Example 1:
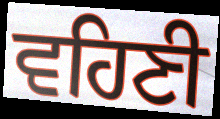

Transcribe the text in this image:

ਵਹਿਣੀ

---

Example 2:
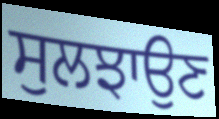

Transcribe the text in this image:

ਸੁਲਝਾਉਣ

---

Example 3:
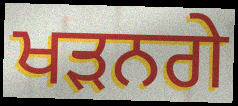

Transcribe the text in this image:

ਖੜਨਗੇ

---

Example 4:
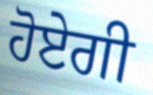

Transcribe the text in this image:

ਹੋਏਗੀ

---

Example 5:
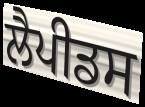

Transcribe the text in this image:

ਲੈਪੀਡਸ